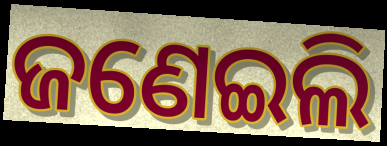
ଜଣେଇଲି